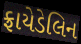
ફ્રાયેડેલિન